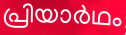
പ്രിയാർഥം